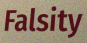
Falsity